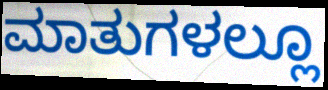
ಮಾತುಗಳಲ್ಲೂ